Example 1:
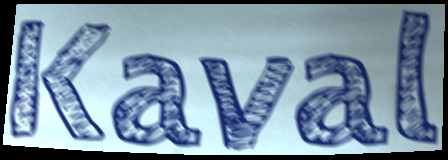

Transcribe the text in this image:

Kaval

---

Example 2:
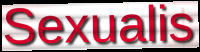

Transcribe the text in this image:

Sexualis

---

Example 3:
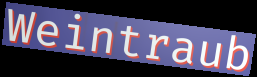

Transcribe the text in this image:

Weintraub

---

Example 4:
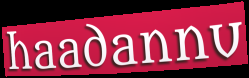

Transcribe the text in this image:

haadannu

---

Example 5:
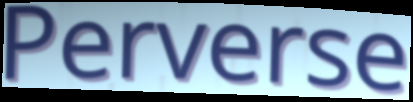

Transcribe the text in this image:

Perverse